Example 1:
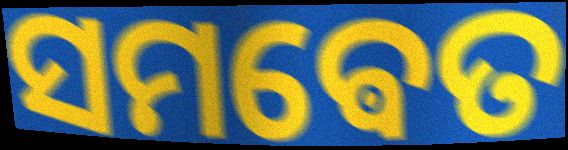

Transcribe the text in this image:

ସମଵେତ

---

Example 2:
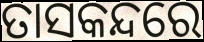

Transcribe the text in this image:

ତାସକନ୍ଦରେ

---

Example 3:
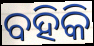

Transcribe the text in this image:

ବହିକି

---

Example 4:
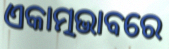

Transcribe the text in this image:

ଏକାତ୍ମଭାବରେ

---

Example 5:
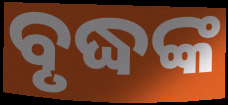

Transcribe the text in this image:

ବୃଦ୍ଧଙ୍କ